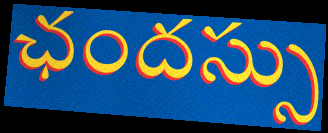
ఛందస్సు